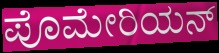
ಪೊಮೇರಿಯನ್